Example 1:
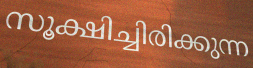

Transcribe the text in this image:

സൂക്ഷിച്ചിരിക്കുന്ന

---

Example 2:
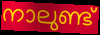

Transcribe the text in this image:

നാലുണ്ട്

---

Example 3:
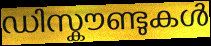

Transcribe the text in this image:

ഡിസ്കൗണ്ടുകൾ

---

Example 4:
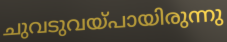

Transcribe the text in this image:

ചുവടുവയ്പായിരുന്നു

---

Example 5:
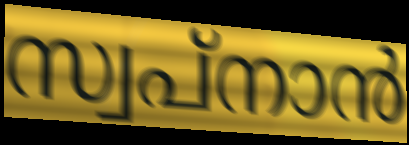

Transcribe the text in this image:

സ്വപ്നാൻ